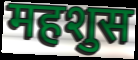
महशुस